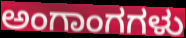
ಅಂಗಾಂಗಗಳು